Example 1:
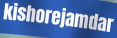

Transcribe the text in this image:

kishorejamdar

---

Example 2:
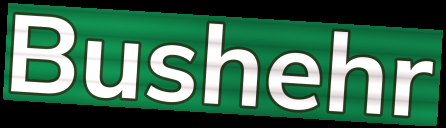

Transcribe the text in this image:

Bushehr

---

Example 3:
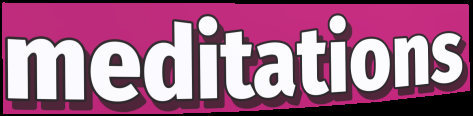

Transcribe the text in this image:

meditations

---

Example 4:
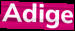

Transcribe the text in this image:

Adige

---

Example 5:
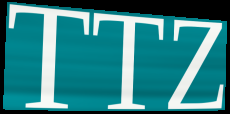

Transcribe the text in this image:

TTZ